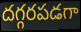
దగ్గరపడగా